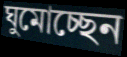
ঘুমোচ্ছেন